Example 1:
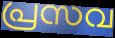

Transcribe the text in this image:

പ്രസവ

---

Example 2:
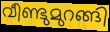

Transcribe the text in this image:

വീണ്ടുമുറങ്ങി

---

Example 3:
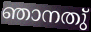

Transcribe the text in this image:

ഞാനതു്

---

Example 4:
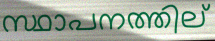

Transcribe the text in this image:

സ്ഥാപനത്തില്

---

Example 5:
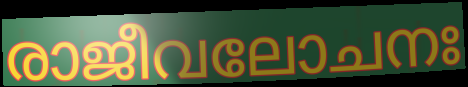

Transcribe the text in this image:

രാജീവലോചനഃ